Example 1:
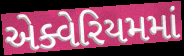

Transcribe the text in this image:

એક્વેરિયમમાં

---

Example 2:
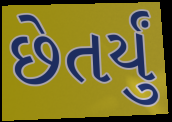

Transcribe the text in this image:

છેતર્યું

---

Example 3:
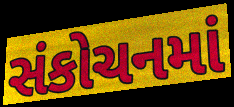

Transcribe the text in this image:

સંકોચનમાં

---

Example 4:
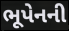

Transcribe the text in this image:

ભૂપેનની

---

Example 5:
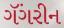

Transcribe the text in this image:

ગૅંગરીન